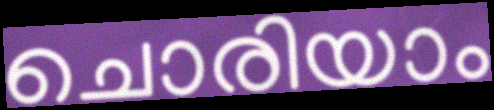
ചൊരിയാം